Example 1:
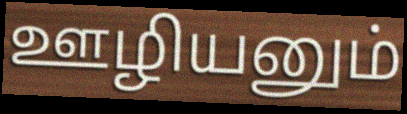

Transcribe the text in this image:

ஊழியனும்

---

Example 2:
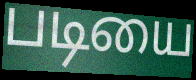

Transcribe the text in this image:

படியை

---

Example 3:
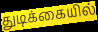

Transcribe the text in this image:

துடிக்கையில்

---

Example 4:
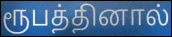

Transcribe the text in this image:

ரூபத்தினால்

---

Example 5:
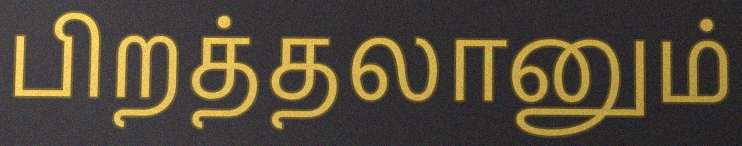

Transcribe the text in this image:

பிறத்தலானும்